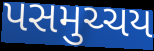
પસમુચ્ચય